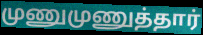
முணுமுணுத்தார்